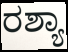
ರಶ್ಯಾ